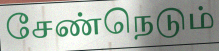
சேண்நெடும்